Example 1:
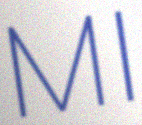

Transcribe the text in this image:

MI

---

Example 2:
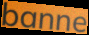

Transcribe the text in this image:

banne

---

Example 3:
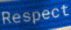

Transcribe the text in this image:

Respect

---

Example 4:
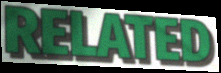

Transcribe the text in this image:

RELATED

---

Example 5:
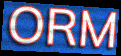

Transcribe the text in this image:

ORM